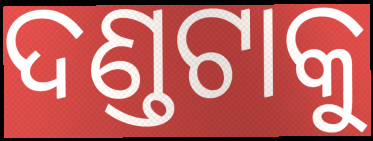
ଦଣ୍ଡଟାକୁ